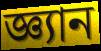
জ্ঞ্যান